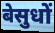
बेसुधों